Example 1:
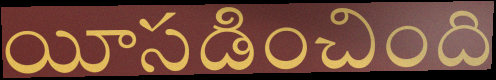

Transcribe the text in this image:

యీసడించింది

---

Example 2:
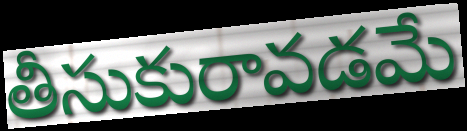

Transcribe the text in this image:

తీసుకురావడమే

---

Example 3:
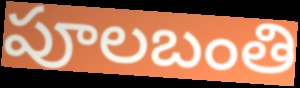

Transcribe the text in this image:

పూలబంతి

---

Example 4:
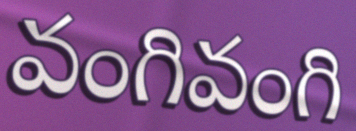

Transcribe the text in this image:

వంగివంగి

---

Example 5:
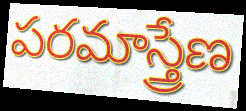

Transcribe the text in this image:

పరమాస్త్రేణ